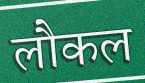
लौकल